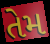
તેમ